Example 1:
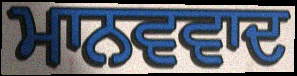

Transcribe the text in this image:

ਮਾਨਵਵਾਦ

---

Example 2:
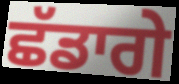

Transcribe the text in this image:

ਛੱਡਾਗੇ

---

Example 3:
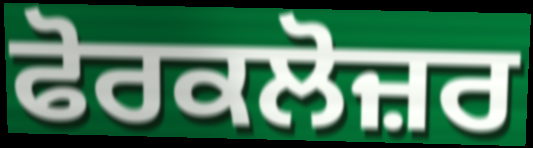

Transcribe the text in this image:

ਫੋਰਕਲੋਜ਼ਰ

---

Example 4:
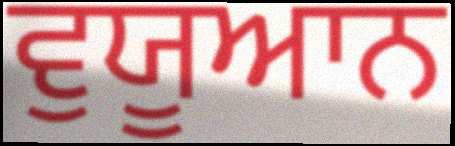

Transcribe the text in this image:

ਵੁਯੂਆਨ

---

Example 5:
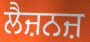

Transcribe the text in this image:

ਲੈਜ਼ਨਜ਼